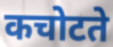
कचोटते